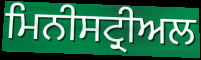
ਮਿਨੀਸਟ੍ਰੀਅਲ